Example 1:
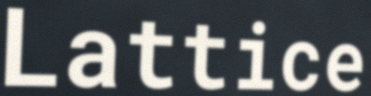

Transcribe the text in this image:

Lattice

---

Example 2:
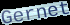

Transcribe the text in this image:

Gernet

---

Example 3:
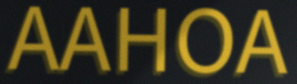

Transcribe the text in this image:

AAHOA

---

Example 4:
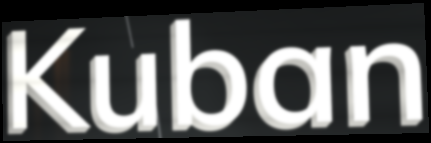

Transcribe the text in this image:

Kuban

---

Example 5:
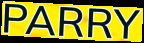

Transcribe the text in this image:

PARRY